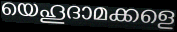
യെഹൂദാമക്കളെ